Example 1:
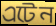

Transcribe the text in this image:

এটেন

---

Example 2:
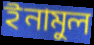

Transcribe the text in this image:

ইনামুল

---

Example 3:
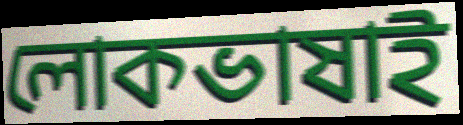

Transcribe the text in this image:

লোকভাষাই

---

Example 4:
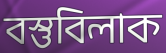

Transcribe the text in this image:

বস্তুবিলাক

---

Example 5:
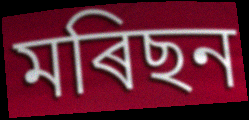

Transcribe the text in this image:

মৰিছন